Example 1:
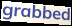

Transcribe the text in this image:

grabbed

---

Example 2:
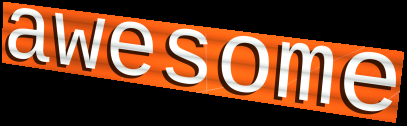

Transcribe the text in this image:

awesome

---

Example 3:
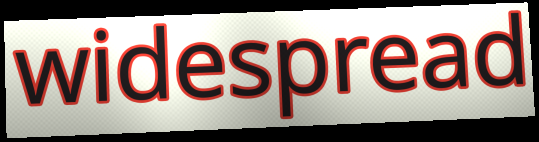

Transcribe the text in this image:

widespread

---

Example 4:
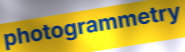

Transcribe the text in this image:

photogrammetry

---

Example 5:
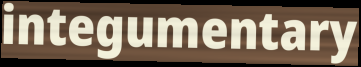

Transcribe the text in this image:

integumentary